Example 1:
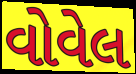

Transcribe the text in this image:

વોવેલ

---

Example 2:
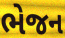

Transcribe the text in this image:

ભેજન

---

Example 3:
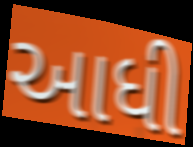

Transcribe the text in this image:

આધી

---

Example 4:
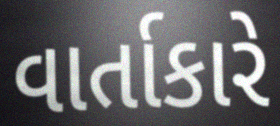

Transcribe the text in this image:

વાર્તાકારે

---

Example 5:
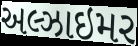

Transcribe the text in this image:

અલ્ઝાઇમર